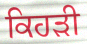
ਕਿਹੜੀ